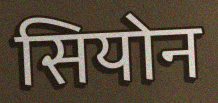
सियोन